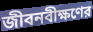
জীবনবীক্ষণের